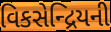
વિકસેન્દ્રિયની